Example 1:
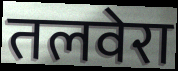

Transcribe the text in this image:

तलवेरा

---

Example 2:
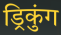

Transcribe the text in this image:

ड्रिकुंग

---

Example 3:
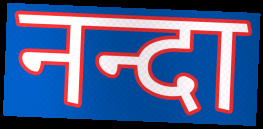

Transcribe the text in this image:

नन्दा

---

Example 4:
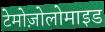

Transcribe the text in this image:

टेमोज़ोलोमाइड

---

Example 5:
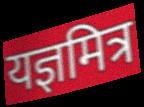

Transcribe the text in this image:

यज्ञमित्र